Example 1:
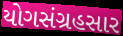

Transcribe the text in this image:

યોગસંગ્રહસાર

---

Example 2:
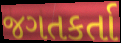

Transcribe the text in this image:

જગતકર્તા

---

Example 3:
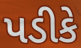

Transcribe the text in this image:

પડીકે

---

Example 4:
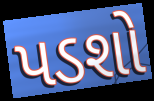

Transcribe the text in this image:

પડશો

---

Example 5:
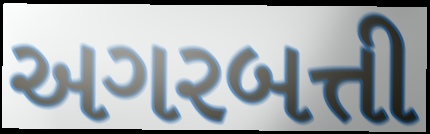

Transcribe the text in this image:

અગરબત્તી